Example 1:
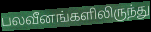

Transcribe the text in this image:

பலவீனங்களிலிருந்து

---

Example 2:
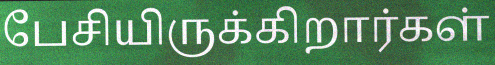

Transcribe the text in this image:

பேசியிருக்கிறார்கள்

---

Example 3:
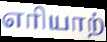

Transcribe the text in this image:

எரியாற்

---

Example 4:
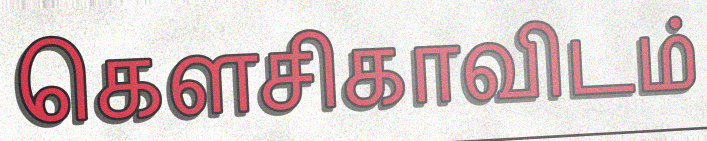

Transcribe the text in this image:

கௌசிகாவிடம்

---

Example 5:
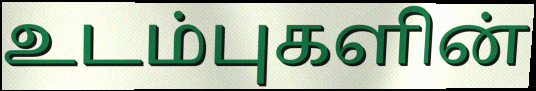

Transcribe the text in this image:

உடம்புகளின்